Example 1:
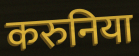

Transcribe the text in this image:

करुनिया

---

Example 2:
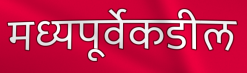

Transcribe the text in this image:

मध्यपूर्वेकडील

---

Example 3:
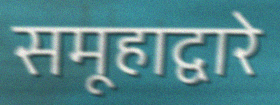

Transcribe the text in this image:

समूहाद्वारे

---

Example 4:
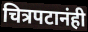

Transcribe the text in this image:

चित्रपटानंही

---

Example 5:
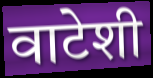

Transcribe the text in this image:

वाटेशी